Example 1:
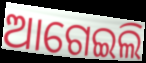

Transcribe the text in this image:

ଆଗେଇଲି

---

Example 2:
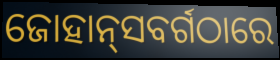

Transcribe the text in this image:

ଜୋହାନ୍‌ସବର୍ଗଠାରେ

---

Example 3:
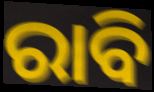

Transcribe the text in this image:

ରାବି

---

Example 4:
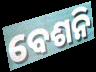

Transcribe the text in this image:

ବେଶନି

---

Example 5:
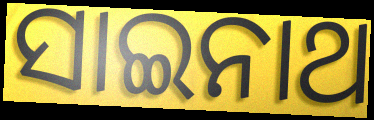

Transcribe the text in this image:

ସାଇନାଥ